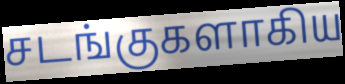
சடங்குகளாகிய